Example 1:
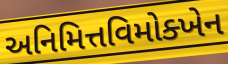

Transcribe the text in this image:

અનિમિત્તવિમોક્ખેન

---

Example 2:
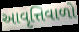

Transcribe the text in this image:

આવૃત્તિવાળો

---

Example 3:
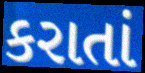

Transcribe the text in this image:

કરાતાં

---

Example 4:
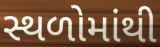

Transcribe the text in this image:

સ્થળોમાંથી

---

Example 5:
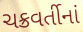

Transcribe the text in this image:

ચક્રવર્તીનાં